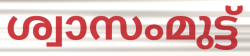
ശ്വാസംമുട്ട്